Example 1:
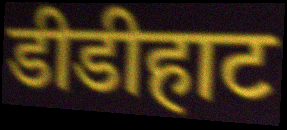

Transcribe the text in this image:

डीडीहाट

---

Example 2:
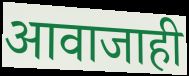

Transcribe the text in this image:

आवाजाही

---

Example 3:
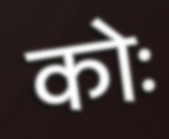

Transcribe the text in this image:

कोः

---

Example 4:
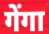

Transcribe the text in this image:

गेंगा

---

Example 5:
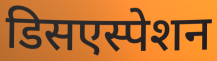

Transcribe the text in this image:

डिसएस्पेशन